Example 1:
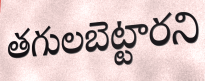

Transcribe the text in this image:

తగులబెట్టారని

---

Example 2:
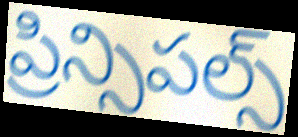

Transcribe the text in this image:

ప్రిన్సిపల్స్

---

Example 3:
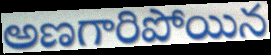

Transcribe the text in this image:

అణగారిపోయిన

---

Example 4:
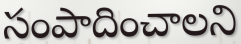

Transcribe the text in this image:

సంపాదించాలని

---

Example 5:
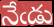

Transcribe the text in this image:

నేఁడు